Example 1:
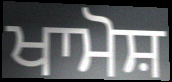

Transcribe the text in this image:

ਖਾਮੋਸ਼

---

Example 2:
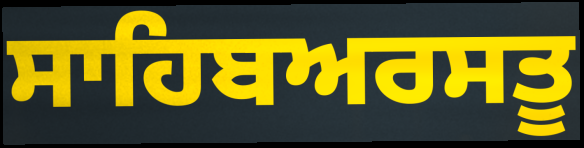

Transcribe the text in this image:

ਸਾਹਿਬਅਰਸਤੂ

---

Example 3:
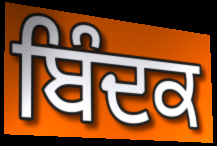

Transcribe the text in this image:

ਬਿੰਦਕ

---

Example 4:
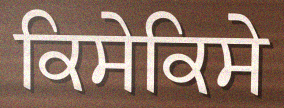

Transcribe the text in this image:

ਕਿਸੇਕਿਸੇ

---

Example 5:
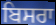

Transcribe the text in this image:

ਬਿਸਰਾ